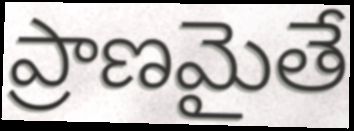
ప్రాణమైతే